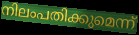
നിലംപതിക്കുമെന്ന്